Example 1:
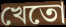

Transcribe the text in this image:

খেতো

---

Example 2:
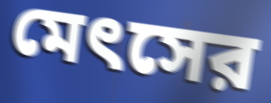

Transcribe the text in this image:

মেৎসের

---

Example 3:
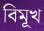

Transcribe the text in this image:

বিমূখ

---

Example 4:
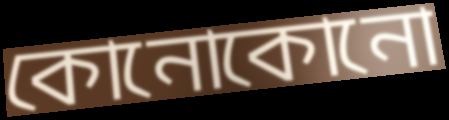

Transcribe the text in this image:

কোনোকোনো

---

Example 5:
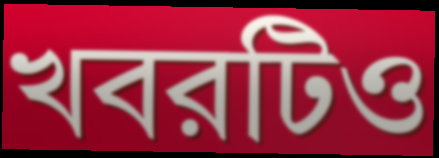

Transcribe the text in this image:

খবরটিও